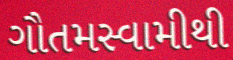
ગૌતમસ્વામીથી